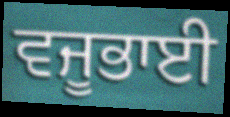
ਵਜੂਭਾਈ